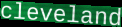
cleveland